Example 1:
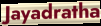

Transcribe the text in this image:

Jayadratha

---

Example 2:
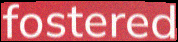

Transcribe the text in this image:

fostered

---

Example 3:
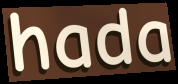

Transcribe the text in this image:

hada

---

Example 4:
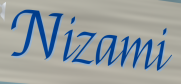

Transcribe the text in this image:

Nizami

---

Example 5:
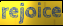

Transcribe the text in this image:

rejoice